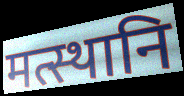
मत्स्थानि